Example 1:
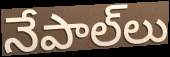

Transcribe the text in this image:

నేపాల్‌లు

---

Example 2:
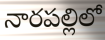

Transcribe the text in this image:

నారపల్లిలో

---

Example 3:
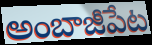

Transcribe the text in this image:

అంబాజీపేట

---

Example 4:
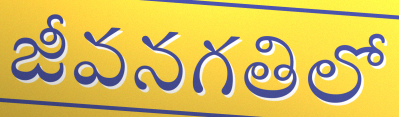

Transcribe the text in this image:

జీవనగతిలో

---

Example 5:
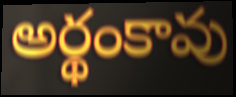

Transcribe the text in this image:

అర్థంకావు